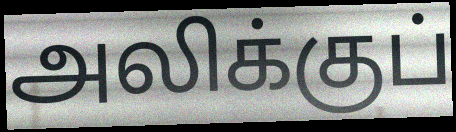
அலிக்குப்